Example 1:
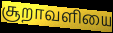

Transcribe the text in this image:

சூறாவளியை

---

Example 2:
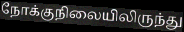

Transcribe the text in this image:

நோக்குநிலையிலிருந்து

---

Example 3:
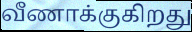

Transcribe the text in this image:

வீணாக்குகிறது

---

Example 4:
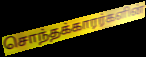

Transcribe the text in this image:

சொந்தக்காரர்களின்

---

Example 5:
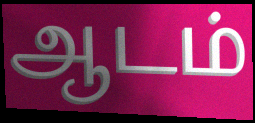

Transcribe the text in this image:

ஆடம்